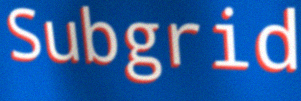
Subgrid